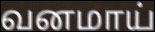
வனமாய்